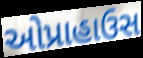
ઓપ્રાહાઉસ